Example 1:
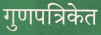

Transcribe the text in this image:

गुणपत्रिकेत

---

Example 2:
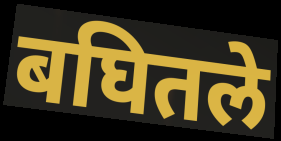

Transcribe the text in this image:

बघितले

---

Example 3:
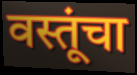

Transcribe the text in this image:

वस्तूंचा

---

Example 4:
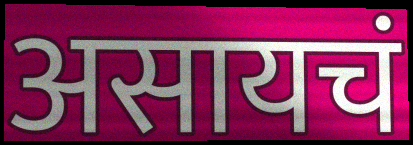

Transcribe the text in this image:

असायचं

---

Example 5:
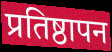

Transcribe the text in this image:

प्रतिष्ठापन